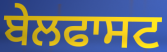
ਬੇਲਫਾਸਟ